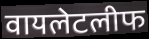
वायलेटलीफ